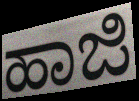
ಹಾಜಿ